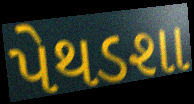
પેથડશા